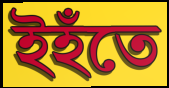
ইহঁতে